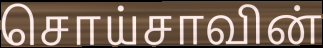
சொய்சாவின்